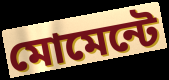
মোমেন্টে